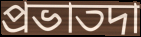
প্রভাতদা